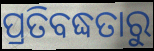
ପ୍ରତିବଦ୍ଧତାରୁ